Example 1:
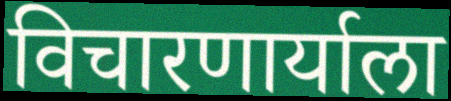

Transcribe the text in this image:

विचारणार्याला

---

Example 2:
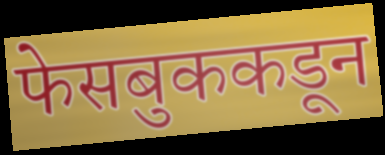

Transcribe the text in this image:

फेसबुककडून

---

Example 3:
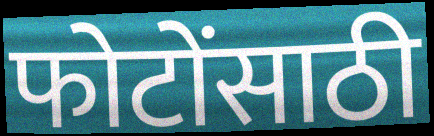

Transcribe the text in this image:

फोटोंसाठी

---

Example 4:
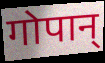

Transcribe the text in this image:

गोपान्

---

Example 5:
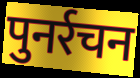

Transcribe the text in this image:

पुनर्रचन